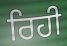
ਰਿਹੀ